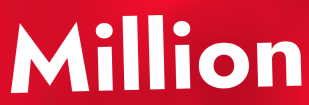
Million